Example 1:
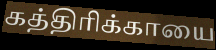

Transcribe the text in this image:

கத்திரிக்காயை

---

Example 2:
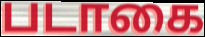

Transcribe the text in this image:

படாகை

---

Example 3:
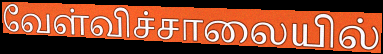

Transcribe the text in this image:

வேள்விச்சாலையில்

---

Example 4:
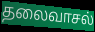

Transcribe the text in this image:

தலைவாசல்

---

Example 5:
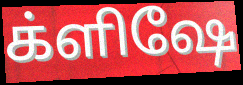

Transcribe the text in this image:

க்ளிஷே